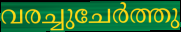
വരച്ചുചേർത്തു